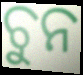
ଚୁନ